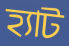
হ্যাট